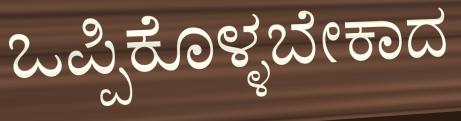
ಒಪ್ಪಿಕೊಳ್ಳಬೇಕಾದ